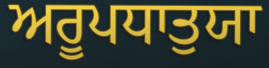
ਅਰੂਪਧਾਤੁਯਾ